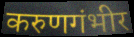
करुणगंभीर